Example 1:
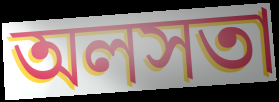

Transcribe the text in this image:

অলসতা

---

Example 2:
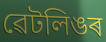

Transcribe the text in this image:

ৱেটলিঙৰ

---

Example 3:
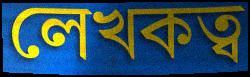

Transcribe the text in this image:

লেখকত্ব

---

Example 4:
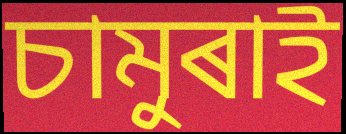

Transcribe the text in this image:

চামুৰাই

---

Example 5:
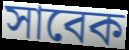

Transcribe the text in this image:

সাবেক